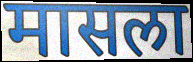
मासला